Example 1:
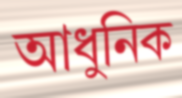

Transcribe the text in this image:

আধুনিক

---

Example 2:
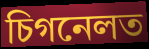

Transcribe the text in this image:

চিগনেলত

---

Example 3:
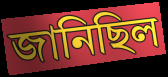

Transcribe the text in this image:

জানিছিল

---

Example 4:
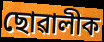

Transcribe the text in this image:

ছোৱালীক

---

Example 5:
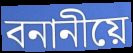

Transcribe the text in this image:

বনানীয়ে